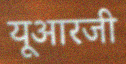
यूआरजी